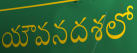
యౌవనదశలో